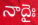
నాదైః